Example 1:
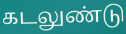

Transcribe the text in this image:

கடலுண்டு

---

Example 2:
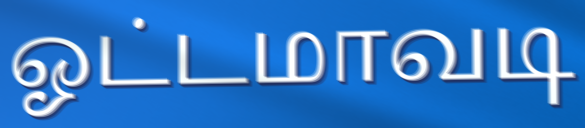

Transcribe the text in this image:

ஓட்டமாவடி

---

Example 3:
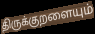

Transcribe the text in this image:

திருக்குறளையும்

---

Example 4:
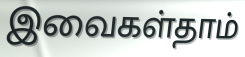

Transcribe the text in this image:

இவைகள்தாம்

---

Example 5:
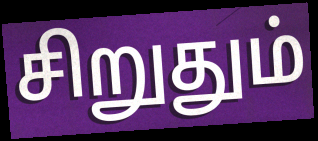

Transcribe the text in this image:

சிறுதும்